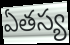
ఏతస్య